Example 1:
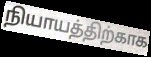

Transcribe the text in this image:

நியாயத்திற்காக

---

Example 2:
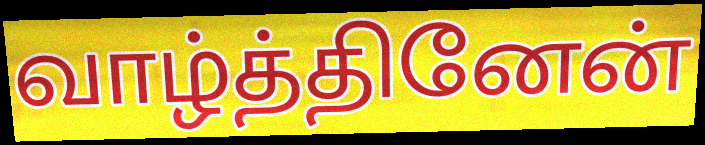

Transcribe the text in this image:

வாழ்த்தினேன்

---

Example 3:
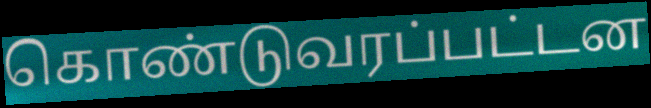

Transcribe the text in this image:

கொண்டுவரப்பட்டன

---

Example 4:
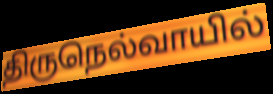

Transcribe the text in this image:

திருநெல்வாயில்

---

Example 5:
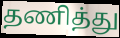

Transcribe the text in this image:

தணித்து